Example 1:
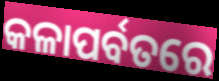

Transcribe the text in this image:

କଳାପର୍ବତରେ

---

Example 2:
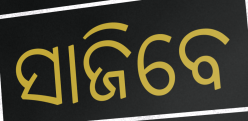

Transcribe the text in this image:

ସାଜିବେ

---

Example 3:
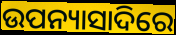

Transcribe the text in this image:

ଉପନ୍ୟାସାଦିରେ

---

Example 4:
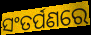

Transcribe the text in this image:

ସଂତର୍ପଣରେ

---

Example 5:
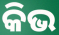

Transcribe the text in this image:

କିଭ